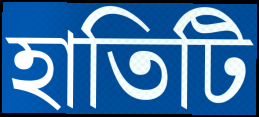
হাতিটি